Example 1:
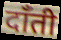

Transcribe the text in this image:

दाँती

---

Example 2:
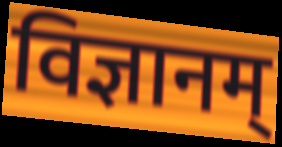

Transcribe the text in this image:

विज्ञानम्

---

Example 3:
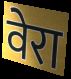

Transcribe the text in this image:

वेरा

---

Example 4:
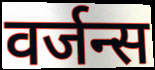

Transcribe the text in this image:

वर्जन्स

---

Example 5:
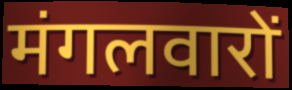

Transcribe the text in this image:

मंगलवारों